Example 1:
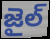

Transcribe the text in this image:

జైల్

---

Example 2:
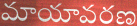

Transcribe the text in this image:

మాయావరణ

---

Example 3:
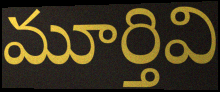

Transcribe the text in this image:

మూర్తివి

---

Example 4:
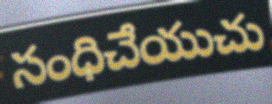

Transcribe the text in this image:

సంధిచేయుచు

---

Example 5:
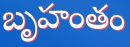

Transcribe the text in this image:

బృహంతం